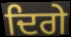
ਦਿਗੇ